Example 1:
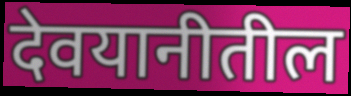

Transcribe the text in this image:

देवयानीतील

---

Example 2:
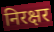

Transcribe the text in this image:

निरक्षर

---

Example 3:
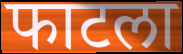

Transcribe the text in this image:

फाटला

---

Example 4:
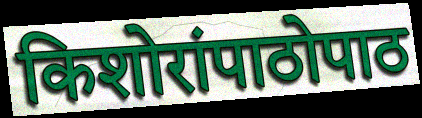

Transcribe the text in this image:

किशोरांपाठोपाठ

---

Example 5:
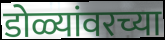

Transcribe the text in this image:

डोळ्यांवरच्या